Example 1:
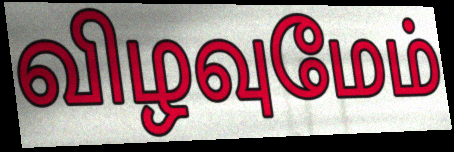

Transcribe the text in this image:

விழவுமேம்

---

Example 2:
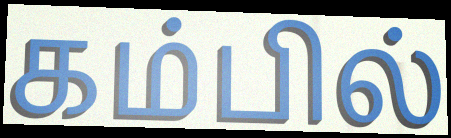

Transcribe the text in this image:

கம்பில்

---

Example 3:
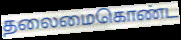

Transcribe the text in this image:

தலைமைகொண்ட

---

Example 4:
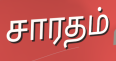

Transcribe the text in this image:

சாரதம்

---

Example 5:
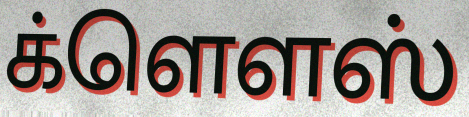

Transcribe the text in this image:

க்ளௌஸ்